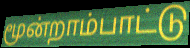
மூன்றாம்பாட்டு